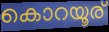
കൊറയൂര്